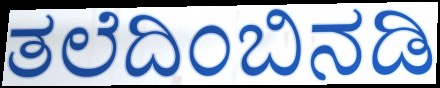
ತಲೆದಿಂಬಿನಡಿ